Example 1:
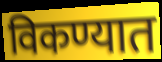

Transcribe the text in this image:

विकण्यात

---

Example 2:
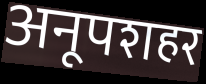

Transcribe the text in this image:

अनूपशहर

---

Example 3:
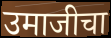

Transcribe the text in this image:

उमाजीचा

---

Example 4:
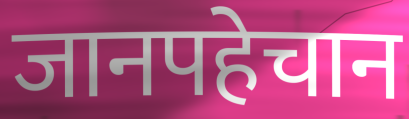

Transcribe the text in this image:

जानपहेचान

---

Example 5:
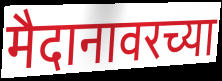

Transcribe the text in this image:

मैदानावरच्या